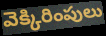
వెక్కిరింపులు